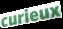
curieux